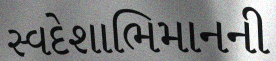
સ્વદેશાભિમાનની